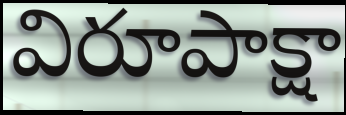
విరూపాక్షా